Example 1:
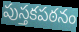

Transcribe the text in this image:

పుస్తకపఠనం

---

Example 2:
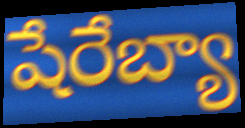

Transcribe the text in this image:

షేరేబ్యా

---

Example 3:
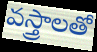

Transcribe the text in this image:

వస్త్రాలతో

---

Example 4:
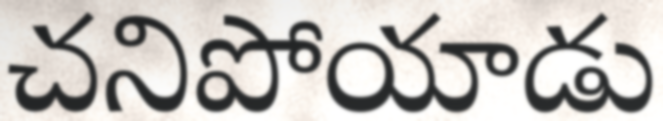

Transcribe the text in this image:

చనిపోయాడు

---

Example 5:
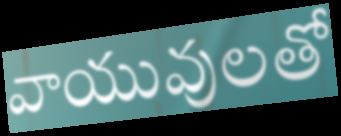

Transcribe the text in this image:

వాయువులతో